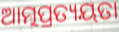
ଆତ୍ମପ୍ରତ୍ୟୟତା